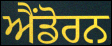
ਐਂਡੋਰਨ